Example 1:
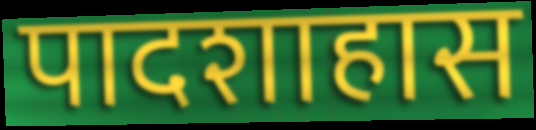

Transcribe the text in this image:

पादशाहास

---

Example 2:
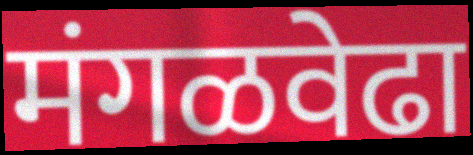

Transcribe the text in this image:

मंगळवेढा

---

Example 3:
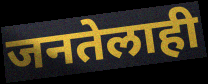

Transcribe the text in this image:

जनतेलाही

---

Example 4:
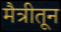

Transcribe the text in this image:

मैत्रीतून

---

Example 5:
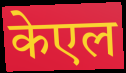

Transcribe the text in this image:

केएल